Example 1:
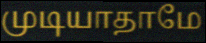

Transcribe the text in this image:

முடியாதாமே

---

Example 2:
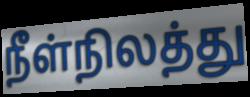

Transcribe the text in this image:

நீள்நிலத்து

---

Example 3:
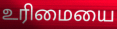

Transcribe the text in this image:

உரிமையை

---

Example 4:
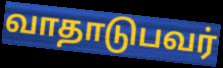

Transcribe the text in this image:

வாதாடுபவர்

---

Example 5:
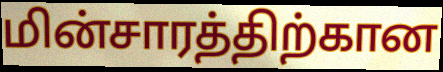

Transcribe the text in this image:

மின்சாரத்திற்கான